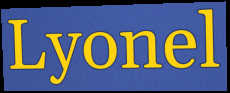
Lyonel